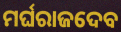
ମର୍ଘରାଜଦେବ